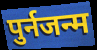
पुर्नजन्म